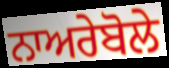
ਨਾਅਰੇਬੋਲੇ